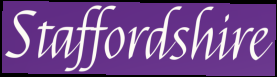
Staffordshire